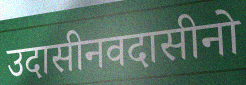
उदासीनवदासीनो